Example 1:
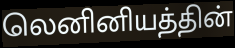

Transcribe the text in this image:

லெனினியத்தின்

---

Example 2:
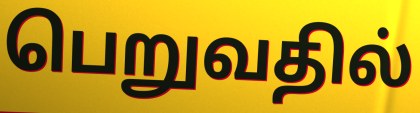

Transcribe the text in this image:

பெறுவதில்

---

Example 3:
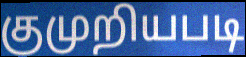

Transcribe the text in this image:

குமுறியபடி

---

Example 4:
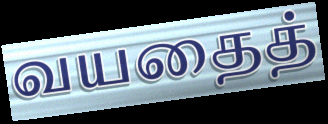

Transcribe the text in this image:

வயதைத்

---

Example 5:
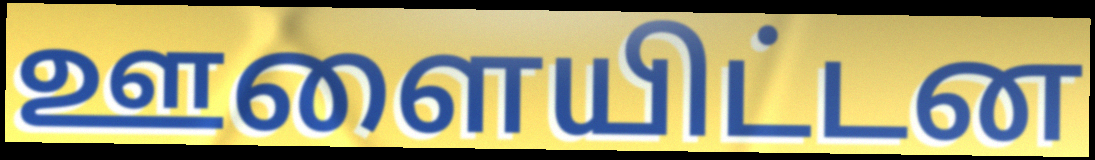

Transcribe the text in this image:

ஊளையிட்டன